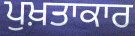
ਪੁਖ਼ਤਾਕਾਰ